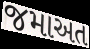
જમાઅત